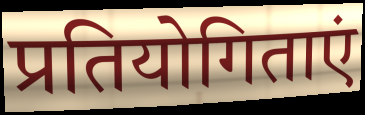
प्रतियोगिताएं